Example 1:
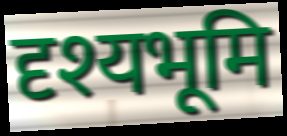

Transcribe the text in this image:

दृश्यभूमि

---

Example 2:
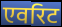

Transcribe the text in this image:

एवरिट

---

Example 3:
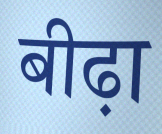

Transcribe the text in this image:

बीढ़ा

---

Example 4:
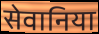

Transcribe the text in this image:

सेवानिया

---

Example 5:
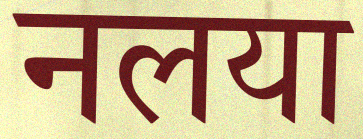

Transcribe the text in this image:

नलया